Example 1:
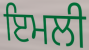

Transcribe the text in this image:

ਇਮਲੀ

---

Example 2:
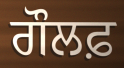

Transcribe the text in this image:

ਗੌਲਫ਼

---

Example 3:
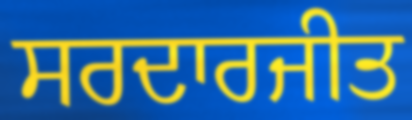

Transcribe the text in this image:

ਸਰਦਾਰਜੀਤ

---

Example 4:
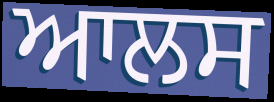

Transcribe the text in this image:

ਆਲਸ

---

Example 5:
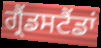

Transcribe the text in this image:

ਗ੍ਰੈਂਡਸਟੈਂਡਾਂ